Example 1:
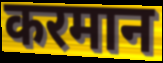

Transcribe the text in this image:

करमान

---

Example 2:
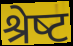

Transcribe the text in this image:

श्रेष्‍ट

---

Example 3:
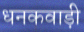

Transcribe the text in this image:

धनकवाड़ी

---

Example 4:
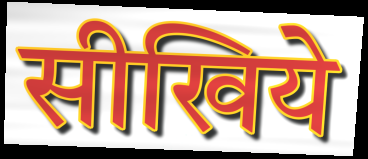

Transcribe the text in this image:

सीखिये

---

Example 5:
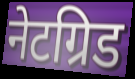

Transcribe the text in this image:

नेटग्रिड